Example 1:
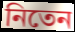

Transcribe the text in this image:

নিতেন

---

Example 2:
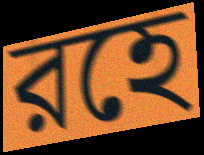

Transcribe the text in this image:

রহে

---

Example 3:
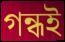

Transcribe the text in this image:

গন্ধই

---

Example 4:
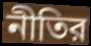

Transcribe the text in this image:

নীতির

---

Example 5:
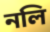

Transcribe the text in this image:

নলি